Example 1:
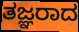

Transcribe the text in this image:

ತಜ್ಞರಾದ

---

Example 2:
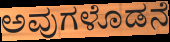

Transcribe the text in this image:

ಅವುಗಳೊಡನೆ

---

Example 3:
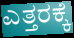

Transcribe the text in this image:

ಎತ್ತರಕ್ಕೆ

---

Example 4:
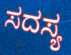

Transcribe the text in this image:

ಸದಸ್ಯ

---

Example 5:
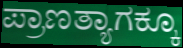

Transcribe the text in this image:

ಪ್ರಾಣತ್ಯಾಗಕ್ಕೂ